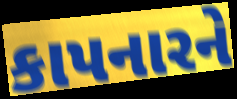
કાપનારને